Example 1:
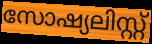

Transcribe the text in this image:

സോഷ്യലിസ്റ്റ്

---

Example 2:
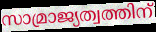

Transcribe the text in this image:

സാമ്രാജ്യത്വത്തിന്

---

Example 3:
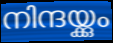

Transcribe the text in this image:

നിന്ദയ്ക്കും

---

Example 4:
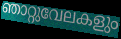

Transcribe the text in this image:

ഞാറ്റുവേലകളും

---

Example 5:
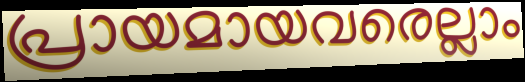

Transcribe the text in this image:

പ്രായമായവരെല്ലാം